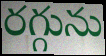
రగ్గును